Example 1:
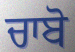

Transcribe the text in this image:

ਚਾਬੋ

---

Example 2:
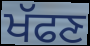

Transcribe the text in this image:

ਖੱਫਣ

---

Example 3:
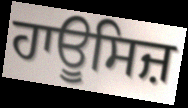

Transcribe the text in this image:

ਹਾਊਸਿਜ਼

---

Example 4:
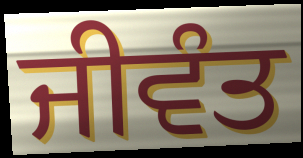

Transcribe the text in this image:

ਜੀਵੰਤ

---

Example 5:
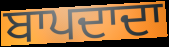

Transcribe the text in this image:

ਬਾਪਦਾਦਾ